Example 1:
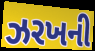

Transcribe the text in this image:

ઝરખની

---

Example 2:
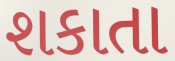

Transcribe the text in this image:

શકાતા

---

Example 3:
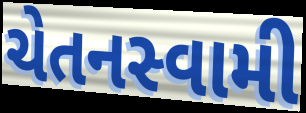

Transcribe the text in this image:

ચેતનસ્વામી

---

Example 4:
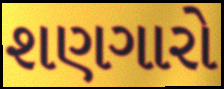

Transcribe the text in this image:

શણગારો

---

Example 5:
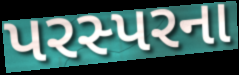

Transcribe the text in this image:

પરસ્પરના